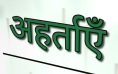
अहर्ताएँ